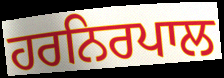
ਹਰਨਿਰਪਾਲ